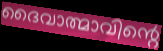
ദൈവാത്മാവിന്റെ